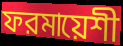
ফরমায়েশী